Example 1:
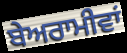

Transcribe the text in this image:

ਬੇਅਰਾਮੀਵਾਂ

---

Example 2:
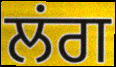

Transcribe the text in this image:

ਲਂਗ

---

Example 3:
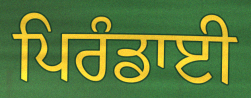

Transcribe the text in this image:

ਪਿਰੰਡਾਈ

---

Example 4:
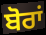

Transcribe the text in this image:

ਬੋਰਾਂ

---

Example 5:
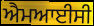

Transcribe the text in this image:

ਐਮਆਈਸੀ